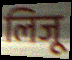
लिजू